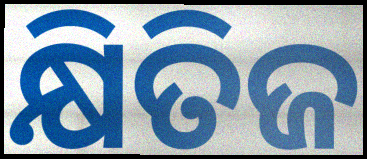
କ୍ଷିତିଜ